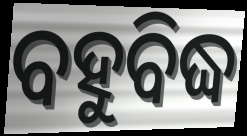
ବହୁବିଦ୍ଧ